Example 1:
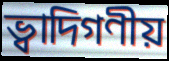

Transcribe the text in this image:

ভ্বাদিগণীয়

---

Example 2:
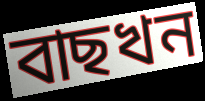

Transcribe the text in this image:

বাছখন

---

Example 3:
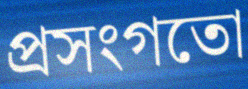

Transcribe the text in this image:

প্ৰসংগতো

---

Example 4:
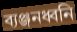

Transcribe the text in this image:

ব্যঞ্জনধ্বনি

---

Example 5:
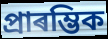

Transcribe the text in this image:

প্ৰাৰম্ভিক